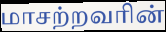
மாசற்றவரின்